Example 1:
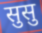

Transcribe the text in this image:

सुसु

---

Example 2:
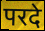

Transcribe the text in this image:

परदे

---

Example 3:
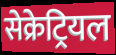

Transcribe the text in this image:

सेक्रेट्रियल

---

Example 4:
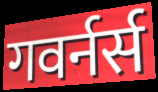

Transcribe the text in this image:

गवर्नर्स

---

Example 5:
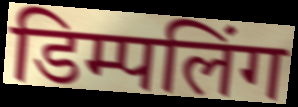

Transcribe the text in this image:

डिम्पलिंग